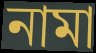
নামা